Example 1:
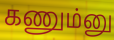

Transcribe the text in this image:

கணும்னு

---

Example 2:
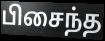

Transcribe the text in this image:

பிசைந்த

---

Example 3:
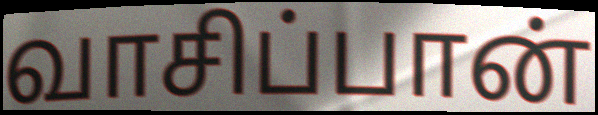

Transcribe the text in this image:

வாசிப்பான்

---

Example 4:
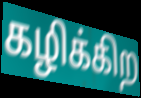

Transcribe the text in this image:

கழிக்கிற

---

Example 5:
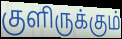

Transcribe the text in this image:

குளிருக்கும்